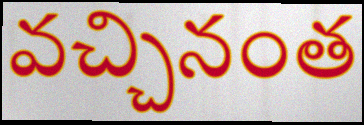
వచ్చినంత